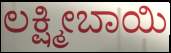
ಲಕ್ಷ್ಮೀಬಾಯಿ